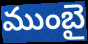
ముంబై